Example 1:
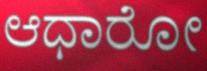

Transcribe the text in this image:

ಆಧಾರೋ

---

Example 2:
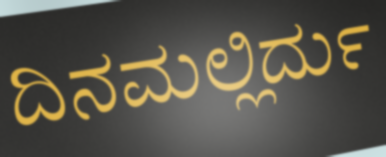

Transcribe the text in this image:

ದಿನಮಲ್ಲಿರ್ದು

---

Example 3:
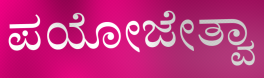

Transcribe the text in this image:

ಪಯೋಜೇತ್ವಾ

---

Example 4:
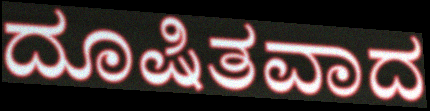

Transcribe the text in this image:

ದೂಷಿತವಾದ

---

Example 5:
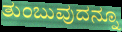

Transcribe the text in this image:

ತುಂಬುವುದನ್ನೂ